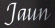
Jaun